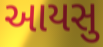
આયસુ